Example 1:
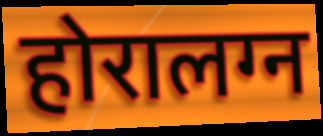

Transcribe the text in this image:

होरालग्न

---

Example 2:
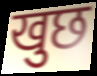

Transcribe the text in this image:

खुछ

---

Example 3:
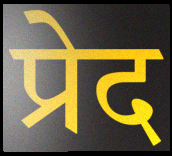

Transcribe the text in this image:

प्रेद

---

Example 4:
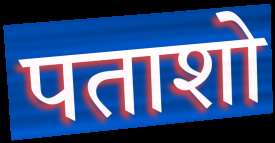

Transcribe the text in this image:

पताशो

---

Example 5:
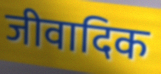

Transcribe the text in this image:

जीवादिक